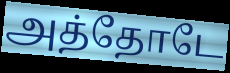
அத்தோடே